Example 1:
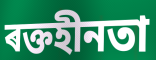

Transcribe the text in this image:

ৰক্তহীনতা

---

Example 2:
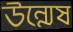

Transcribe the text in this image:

উন্মেষ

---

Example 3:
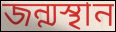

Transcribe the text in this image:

জন্মস্থান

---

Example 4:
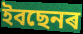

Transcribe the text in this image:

ইবছেনৰ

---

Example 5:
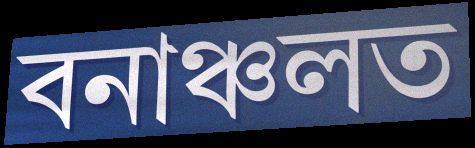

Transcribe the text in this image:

বনাঞ্চলত